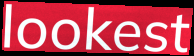
lookest